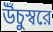
উঁচুস্বরে